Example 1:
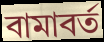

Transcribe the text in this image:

বামাবর্ত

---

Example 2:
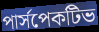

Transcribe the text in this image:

পার্সপেকটিভ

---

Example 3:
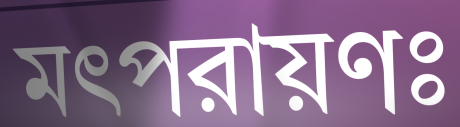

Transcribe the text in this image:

মৎপরায়ণঃ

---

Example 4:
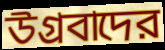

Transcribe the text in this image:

উগ্রবাদের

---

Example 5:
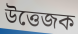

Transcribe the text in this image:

উত্তেজক